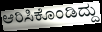
ಆರಿಸಿಕೊಂಡಿದ್ದು